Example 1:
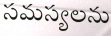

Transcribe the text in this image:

సమస్యలను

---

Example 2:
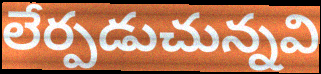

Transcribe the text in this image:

లేర్పడుచున్నవి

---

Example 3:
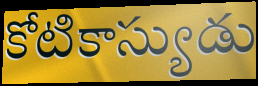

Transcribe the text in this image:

కోటికాస్యుడు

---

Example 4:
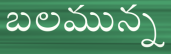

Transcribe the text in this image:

బలమున్న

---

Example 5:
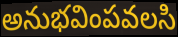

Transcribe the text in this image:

అనుభవింపవలసి